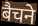
बैचने